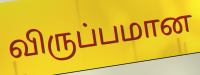
விருப்பமான